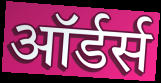
ऑर्डर्स